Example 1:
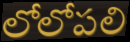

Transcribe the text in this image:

లోలోపలి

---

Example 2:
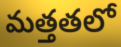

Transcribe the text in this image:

మత్తతలో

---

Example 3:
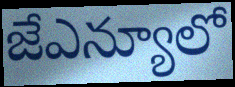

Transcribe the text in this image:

జేఎన్యూలో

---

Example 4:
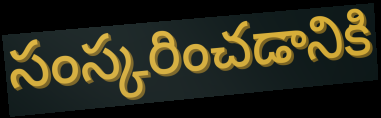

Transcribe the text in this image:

సంస్కరించడానికి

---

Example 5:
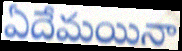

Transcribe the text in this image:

ఏదేమయినా